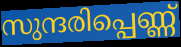
സുന്ദരിപ്പെണ്ണ്